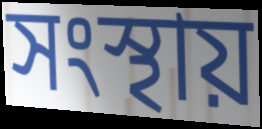
সংস্থায়